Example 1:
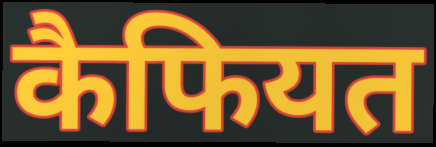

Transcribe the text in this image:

कैफियत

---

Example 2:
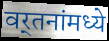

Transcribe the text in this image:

वर्तनांमध्ये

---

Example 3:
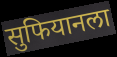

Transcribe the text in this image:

सुफियानला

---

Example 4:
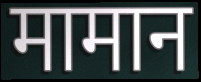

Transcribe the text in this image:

मामान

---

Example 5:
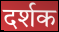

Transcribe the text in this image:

दर्शक